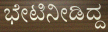
ಭೇಟಿನೀಡಿದ್ದ